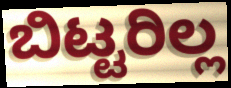
ಬಿಟ್ಟರಿಲ್ಲ